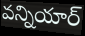
వన్నియార్